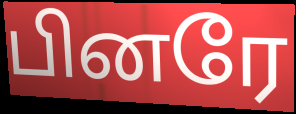
பினரே